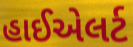
હાઈએલર્ટ